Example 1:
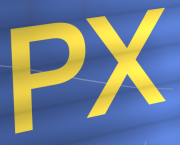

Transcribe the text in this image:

PX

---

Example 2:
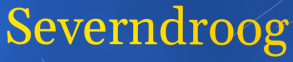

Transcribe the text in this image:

Severndroog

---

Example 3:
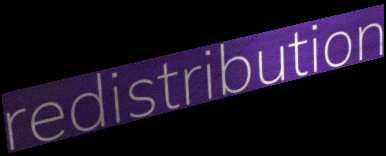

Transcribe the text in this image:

redistribution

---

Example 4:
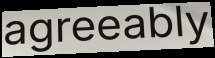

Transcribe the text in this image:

agreeably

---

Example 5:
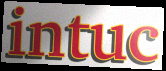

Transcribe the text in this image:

intuc